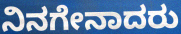
ನಿನಗೇನಾದರು